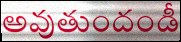
అవుతుందండీ